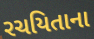
રચયિતાના